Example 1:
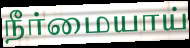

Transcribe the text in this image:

நீர்மையாய்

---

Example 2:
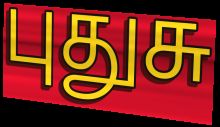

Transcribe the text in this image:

புதுசு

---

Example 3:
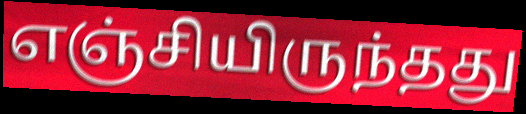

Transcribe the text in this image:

எஞ்சியிருந்தது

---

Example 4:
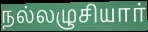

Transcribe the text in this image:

நல்லழுசியார்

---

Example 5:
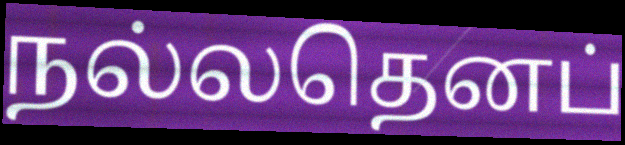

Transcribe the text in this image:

நல்லதெனப்